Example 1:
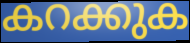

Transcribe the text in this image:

കറക്കുക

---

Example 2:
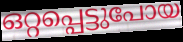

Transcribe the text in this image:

ഒറ്റപ്പെട്ടുപോയ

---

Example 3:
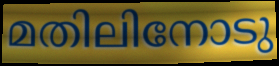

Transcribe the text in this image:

മതിലിനോടു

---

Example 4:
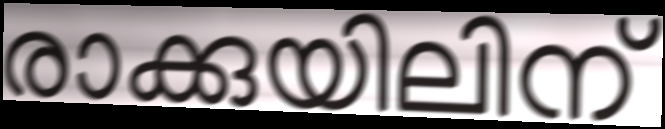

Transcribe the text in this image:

രാക്കുയിലിന്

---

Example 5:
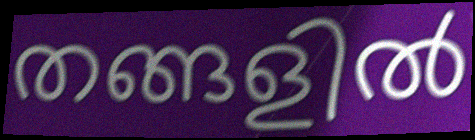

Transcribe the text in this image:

തങ്ങളിൽ